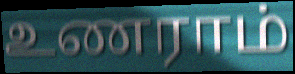
உணராம்